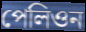
পেলিওন